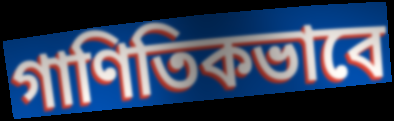
গাণিতিকভাবে